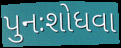
પુનઃશોધવા